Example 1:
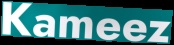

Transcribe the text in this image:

Kameez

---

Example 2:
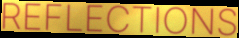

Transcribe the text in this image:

REFLECTIONS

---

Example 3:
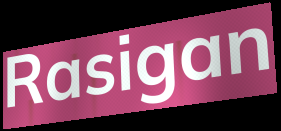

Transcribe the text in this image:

Rasigan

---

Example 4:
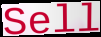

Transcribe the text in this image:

Sell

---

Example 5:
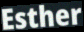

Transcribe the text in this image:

Esther